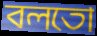
বলতো